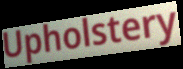
Upholstery